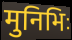
मुनिभिः